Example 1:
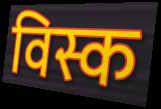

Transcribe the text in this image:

विस्क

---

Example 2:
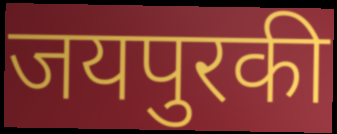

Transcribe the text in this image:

जयपुरकी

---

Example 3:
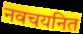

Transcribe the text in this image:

नवचयनित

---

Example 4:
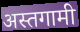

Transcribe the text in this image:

अस्तगामी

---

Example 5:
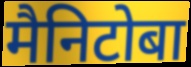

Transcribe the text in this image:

मैनिटोबा